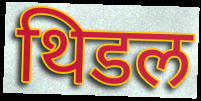
थिडल